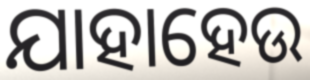
ଯାହାହେଉ